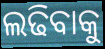
ଲଢିବାକୁ